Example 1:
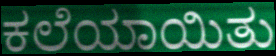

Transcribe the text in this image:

ಕಲೆಯಾಯಿತು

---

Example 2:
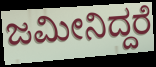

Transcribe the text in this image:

ಜಮೀನಿದ್ದರೆ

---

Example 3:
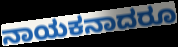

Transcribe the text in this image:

ನಾಯಕನಾದರೂ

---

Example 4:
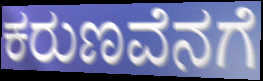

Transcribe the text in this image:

ಕರುಣವೆನಗೆ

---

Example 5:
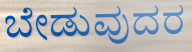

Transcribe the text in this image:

ಬೇಡುವುದರ